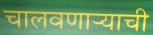
चालवणाऱ्याची